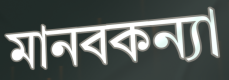
মানবকন্যা